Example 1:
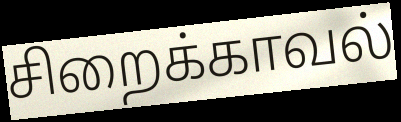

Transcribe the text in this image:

சிறைக்காவல்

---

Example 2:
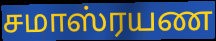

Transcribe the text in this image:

சமாஸ்ரயண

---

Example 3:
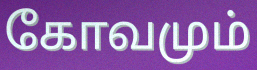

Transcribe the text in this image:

கோவமும்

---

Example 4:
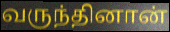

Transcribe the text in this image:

வருந்தினான்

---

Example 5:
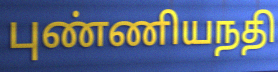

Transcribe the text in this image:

புண்ணியநதி